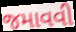
જમાવવી